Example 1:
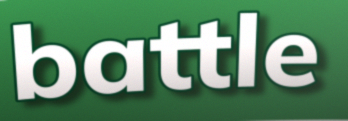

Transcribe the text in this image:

battle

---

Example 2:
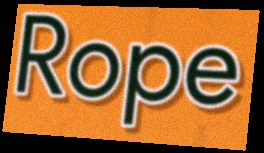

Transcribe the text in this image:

Rope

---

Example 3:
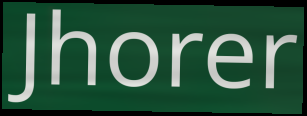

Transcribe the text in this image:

Jhorer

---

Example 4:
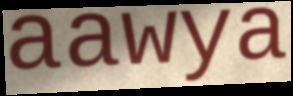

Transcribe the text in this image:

aawya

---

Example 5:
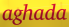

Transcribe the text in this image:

aghada